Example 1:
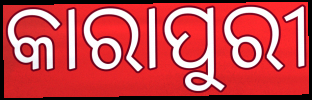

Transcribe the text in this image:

କାରାପୁରୀ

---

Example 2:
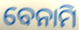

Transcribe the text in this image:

ବେନାମି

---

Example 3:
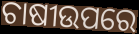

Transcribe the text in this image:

ଚାଷୀଉପରେ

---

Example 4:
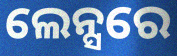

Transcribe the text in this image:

ଲେନ୍ସରେ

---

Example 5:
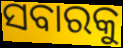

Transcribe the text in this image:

ସବାରକୁ